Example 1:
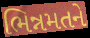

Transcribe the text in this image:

ભિન્નમતને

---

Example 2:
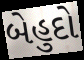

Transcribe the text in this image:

બેહુદો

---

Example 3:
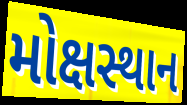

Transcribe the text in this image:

મોક્ષસ્થાન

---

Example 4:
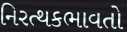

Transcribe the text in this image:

નિરત્થકભાવતો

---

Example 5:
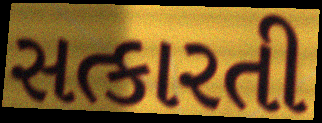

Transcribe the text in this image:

સત્કારતી